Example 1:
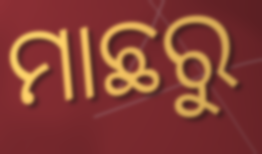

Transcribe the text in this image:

ମାଛରୁ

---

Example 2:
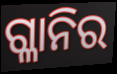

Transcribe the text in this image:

ଗ୍ଳାନିର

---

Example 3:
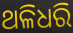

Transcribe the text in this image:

ଥଳିଧରି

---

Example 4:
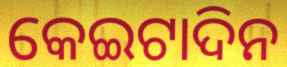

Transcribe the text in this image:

କେଇଟାଦିନ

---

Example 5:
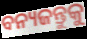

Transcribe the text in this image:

ବନ୍ୟଜନ୍ତୁକୁ